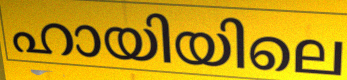
ഹായിയിലെ